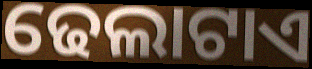
ଢେଲାଟାଏ